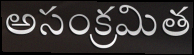
అసంక్రమిత